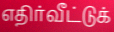
எதிர்வீட்டுக்